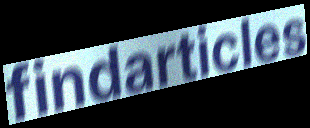
findarticles